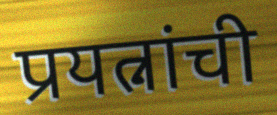
प्रयत्नांची